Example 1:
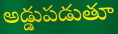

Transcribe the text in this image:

అడ్డుపడుతూ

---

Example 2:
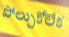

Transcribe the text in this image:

పోల్చుకోలేక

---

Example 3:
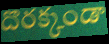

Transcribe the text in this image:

దొరక్కండా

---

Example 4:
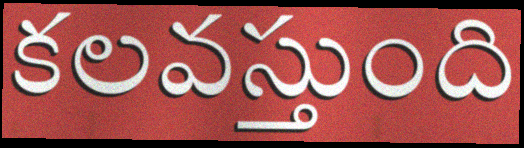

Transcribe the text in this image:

కలవస్తుంది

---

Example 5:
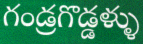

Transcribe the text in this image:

గండ్రగొడ్డళ్ళు